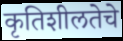
कृतिशीलतेचे